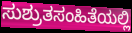
ಸುಶ್ರುತಸಂಹಿತೆಯಲ್ಲಿ